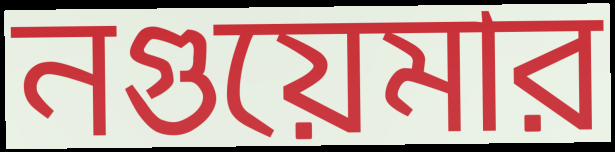
নগুয়েমার